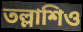
তল্লাশিও